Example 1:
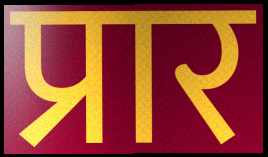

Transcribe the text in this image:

प्रार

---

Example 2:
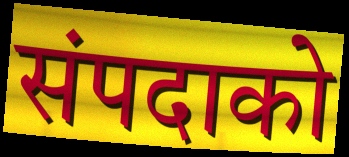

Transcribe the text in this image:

संपदाको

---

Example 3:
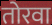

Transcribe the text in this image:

तोरवा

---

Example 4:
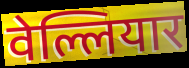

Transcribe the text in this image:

वेल्लियार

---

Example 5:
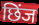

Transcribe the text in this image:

छिंज